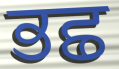
ਭਛ